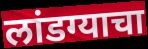
लांडग्याचा